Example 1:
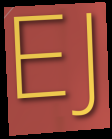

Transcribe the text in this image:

EJ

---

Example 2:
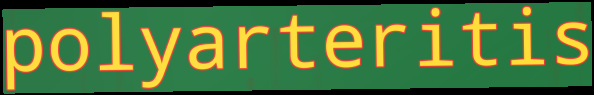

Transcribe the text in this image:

polyarteritis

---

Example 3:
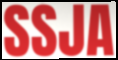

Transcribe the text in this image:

SSJA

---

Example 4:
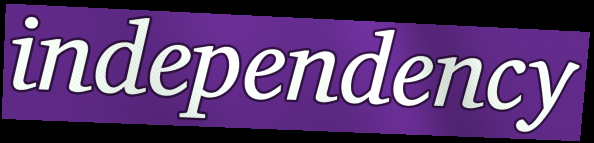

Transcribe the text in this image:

independency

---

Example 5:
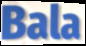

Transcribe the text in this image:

Bala